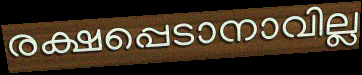
രക്ഷപ്പെടാനാവില്ല